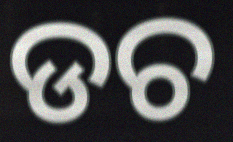
ଡଚ